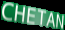
CHETAN